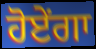
ਹੋਏਂਗਾ